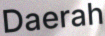
Daerah